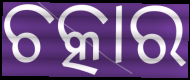
ଚତ୍କାର